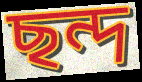
ছন্দ